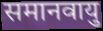
समानवायु